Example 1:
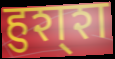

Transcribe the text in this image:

हुश्श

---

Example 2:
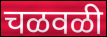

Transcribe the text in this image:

चळवळी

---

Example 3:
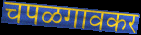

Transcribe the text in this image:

चपळगावकर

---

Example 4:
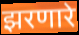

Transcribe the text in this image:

झरणारे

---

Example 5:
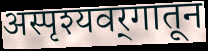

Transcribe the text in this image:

अस्पृश्यवर्गातून